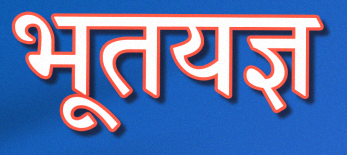
भूतयज्ञ